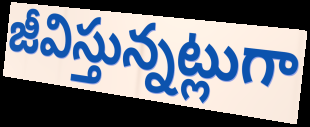
జీవిస్తున్నట్లుగా